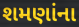
શમણાંના